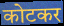
कोटकर